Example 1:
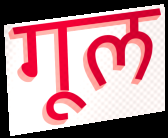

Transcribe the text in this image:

गूल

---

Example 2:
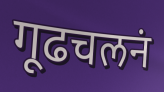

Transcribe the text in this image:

गूढचलनं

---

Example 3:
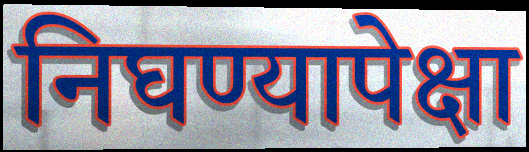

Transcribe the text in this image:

निघण्यापेक्षा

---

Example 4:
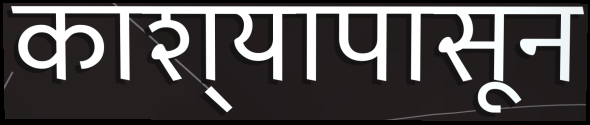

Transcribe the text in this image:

काश्यापासून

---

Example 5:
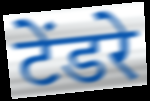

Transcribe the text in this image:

टेंडरे